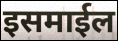
इसमाईल